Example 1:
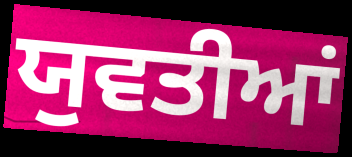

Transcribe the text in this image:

ਯੁਵਤੀਆਂ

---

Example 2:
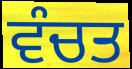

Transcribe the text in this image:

ਵੰਚਤ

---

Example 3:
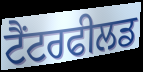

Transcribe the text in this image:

ਟੈਂਟਰਫੀਲਡ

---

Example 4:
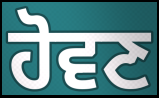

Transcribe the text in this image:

ਹੋਵਣ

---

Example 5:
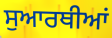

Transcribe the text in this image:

ਸੁਆਰਥੀਆਂ